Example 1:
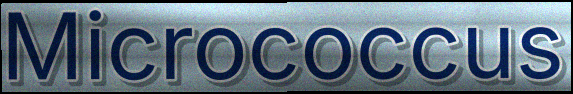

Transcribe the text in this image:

Micrococcus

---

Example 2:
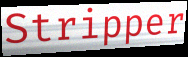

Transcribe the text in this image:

Stripper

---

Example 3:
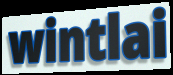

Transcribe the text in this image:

wintlai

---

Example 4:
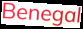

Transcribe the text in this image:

Benegal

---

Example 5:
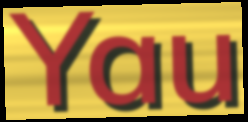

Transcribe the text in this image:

Yau